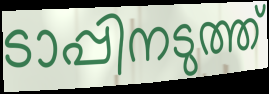
ടാപ്പിനടുത്ത്